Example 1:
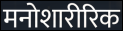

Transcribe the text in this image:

मनोशारीरिक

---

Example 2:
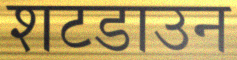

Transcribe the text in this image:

शटडाउन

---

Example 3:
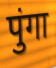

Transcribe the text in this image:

पुंगा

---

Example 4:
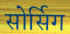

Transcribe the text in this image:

सोर्सिग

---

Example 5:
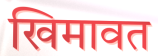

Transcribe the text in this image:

खिमावत